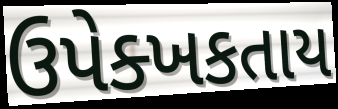
ઉપેક્ખકતાય